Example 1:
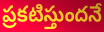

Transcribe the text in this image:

ప్రకటిస్తుందనే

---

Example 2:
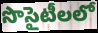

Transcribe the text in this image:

సొసైటీలలో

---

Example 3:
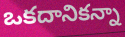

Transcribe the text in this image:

ఒకదానికన్నా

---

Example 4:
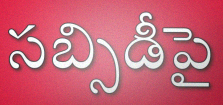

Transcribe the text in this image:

సబ్సిడీపై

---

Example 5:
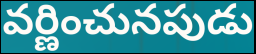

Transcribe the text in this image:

వర్ణించునపుడు